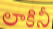
లాకినీ